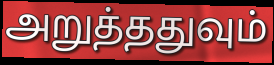
அறுத்ததுவும்